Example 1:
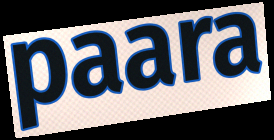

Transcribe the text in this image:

paara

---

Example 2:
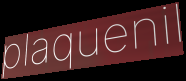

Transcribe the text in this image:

plaquenil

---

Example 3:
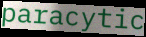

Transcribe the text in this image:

paracytic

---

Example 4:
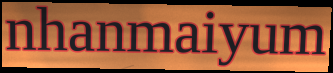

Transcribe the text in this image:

nhanmaiyum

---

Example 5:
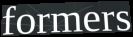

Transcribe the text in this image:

formers